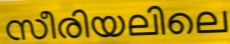
സീരിയലിലെ